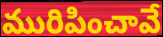
మురిపించావే